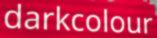
darkcolour